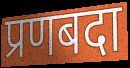
प्रणबदा